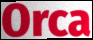
Orca